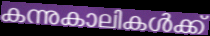
കന്നുകാലികൾക്ക്